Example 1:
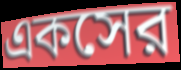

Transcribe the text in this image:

একসের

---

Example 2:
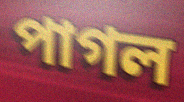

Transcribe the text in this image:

পাগল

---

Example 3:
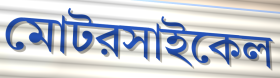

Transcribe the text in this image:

মোটরসাইকেল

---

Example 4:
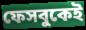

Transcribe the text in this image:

ফেসবুকেই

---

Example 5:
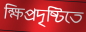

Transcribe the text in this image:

ক্ষিপ্রদৃষ্টিতে